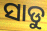
ସାଡୁ